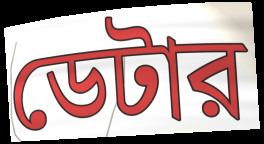
ডেটার